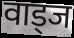
वाड्ज